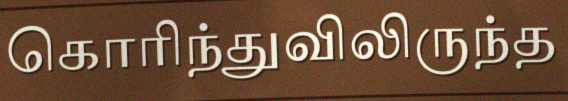
கொரிந்துவிலிருந்த